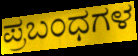
ಪ್ರಬಂಧಗಳ